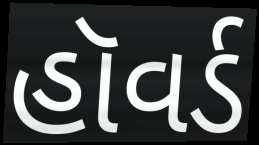
હૉવર્ડ